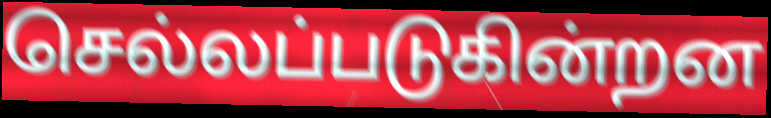
செல்லப்படுகின்றன